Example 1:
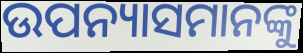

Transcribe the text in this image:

ଉପନ୍ୟାସମାନଙ୍କୁ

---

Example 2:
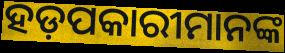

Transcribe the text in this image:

ହଡ଼ପକାରୀମାନଙ୍କ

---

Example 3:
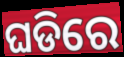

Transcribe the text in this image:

ଘଡିରେ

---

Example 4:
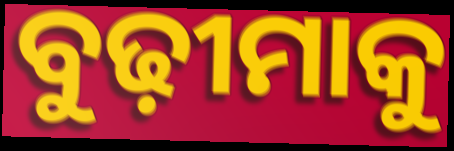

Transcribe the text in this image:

ବୁଢ଼ୀମାକୁ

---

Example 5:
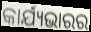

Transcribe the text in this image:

କାର୍ଯ୍ୟଭାରର